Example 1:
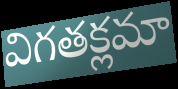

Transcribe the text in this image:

విగతక్లమా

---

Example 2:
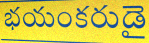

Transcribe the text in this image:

భయంకరుడై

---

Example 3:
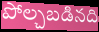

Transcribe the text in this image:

పోల్చబడినది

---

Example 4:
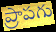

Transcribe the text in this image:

ప్రాపగు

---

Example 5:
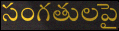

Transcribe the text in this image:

సంగతులపై